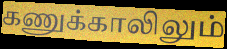
கணுக்காலிலும்